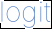
logit